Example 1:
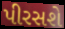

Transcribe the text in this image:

પીરસશે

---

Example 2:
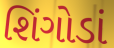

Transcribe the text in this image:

શિંગોડાં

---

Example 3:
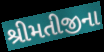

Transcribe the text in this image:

શ્રીમતીજીના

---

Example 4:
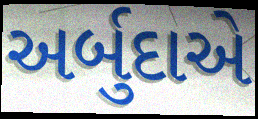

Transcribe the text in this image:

અર્બુદાએ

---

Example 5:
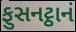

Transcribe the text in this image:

ફુસનટ્ઠાનં